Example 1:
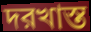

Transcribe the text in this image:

দরখাস্ত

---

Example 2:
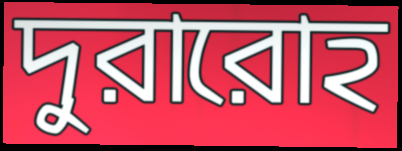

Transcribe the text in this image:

দুরারোহ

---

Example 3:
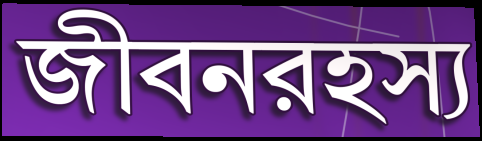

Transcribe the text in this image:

জীবনরহস্য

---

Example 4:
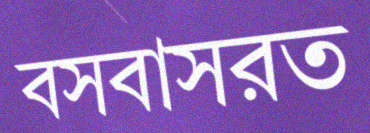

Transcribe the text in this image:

বসবাসরত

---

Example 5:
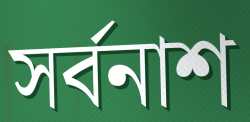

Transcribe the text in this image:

সর্বনাশ